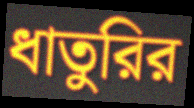
ধাতুরির